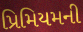
પ્રિમિયમની